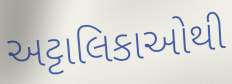
અટ્ટાલિકાઓથી